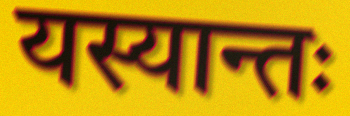
यस्यान्तः